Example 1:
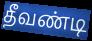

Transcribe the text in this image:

தீவண்டி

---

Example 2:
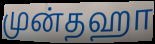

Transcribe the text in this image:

முன்தஹா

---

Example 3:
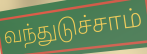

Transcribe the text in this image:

வந்துடுச்சாம்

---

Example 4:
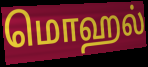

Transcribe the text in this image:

மொஹல்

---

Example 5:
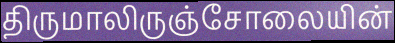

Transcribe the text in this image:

திருமாலிருஞ்சோலையின்